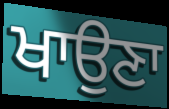
ਖਾਉਣਾ